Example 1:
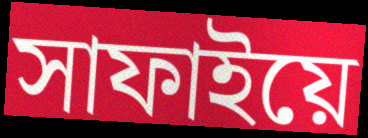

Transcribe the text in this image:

সাফাইয়ে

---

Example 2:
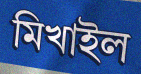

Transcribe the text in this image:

মিখাইল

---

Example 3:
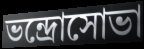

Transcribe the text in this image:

ভন্দ্রোসোভা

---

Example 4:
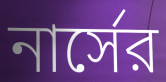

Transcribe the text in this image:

নার্সের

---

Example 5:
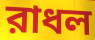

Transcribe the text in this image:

রাধল